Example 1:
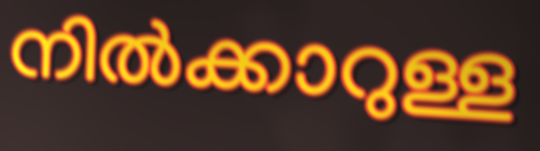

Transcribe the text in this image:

നിൽക്കാറുള്ള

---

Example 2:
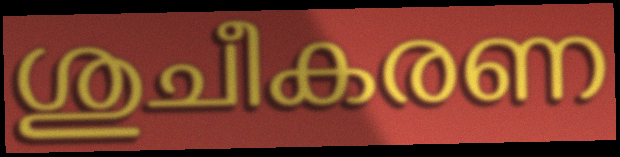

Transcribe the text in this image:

ശുചീകരണ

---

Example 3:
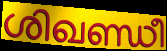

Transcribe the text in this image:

ശിഖണ്ഡീ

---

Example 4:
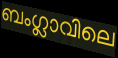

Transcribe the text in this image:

ബംഗ്ലാവിലെ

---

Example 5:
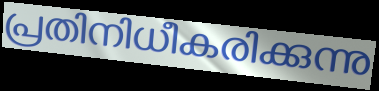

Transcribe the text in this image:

പ്രതിനിധീകരിക്കുന്നു